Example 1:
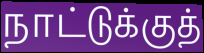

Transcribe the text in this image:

நாட்டுக்குத்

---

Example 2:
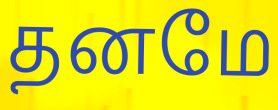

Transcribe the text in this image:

தனமே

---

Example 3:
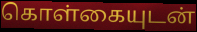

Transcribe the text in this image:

கொள்கையுடன்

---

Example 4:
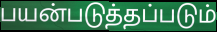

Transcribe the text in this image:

பயன்படுத்தப்படும்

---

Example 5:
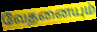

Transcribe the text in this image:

வேதனையும்